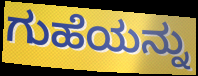
ಗುಹೆಯನ್ನು